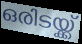
ഒരിടയ്ക്ക്